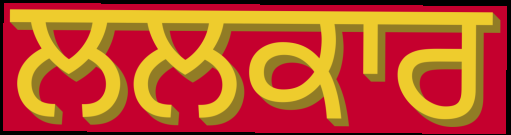
ਲਲਕਾਰ